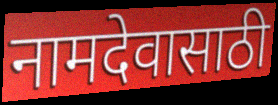
नामदेवासाठी